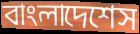
বাংলাদেশেস